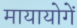
मायायोगें